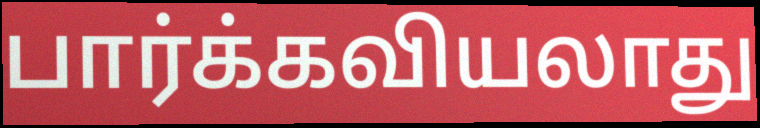
பார்க்கவியலாது